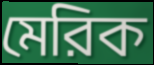
মেরিক